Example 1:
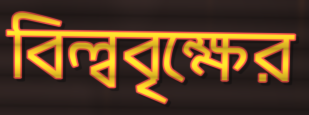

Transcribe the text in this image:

বিল্ববৃক্ষের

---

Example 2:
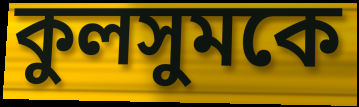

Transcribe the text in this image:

কুলসুমকে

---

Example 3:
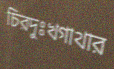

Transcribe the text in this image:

চিরদুঃখগাথার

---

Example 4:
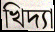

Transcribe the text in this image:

খিদ্যা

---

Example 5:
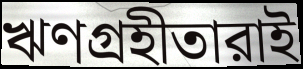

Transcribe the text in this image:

ঋণগ্রহীতারাই